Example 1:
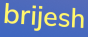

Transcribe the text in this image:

brijesh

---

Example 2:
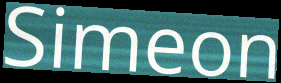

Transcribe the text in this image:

Simeon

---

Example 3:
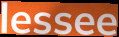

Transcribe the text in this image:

lessee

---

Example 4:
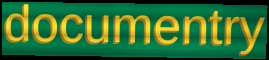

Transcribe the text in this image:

documentry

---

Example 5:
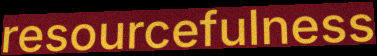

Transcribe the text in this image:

resourcefulness